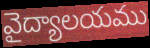
వైద్యాలయము